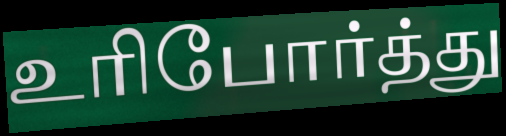
உரிபோர்த்து